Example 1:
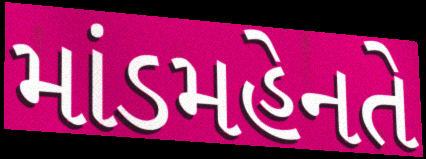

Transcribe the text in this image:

માંડમહેનતે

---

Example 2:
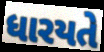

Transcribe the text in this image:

ધારયતે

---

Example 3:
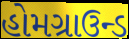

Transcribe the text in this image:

હોમગ્રાઉન્ડ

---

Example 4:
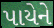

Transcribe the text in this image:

પાયેને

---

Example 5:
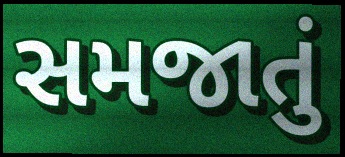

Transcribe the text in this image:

સમજાતું